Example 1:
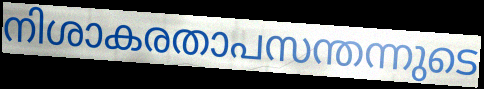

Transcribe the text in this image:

നിശാകരതാപസന്തന്നുടെ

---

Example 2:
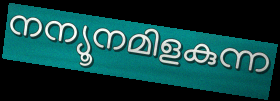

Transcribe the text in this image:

നന്യൂനമിളകുന്ന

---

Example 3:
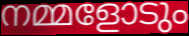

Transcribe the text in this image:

നമ്മളോടും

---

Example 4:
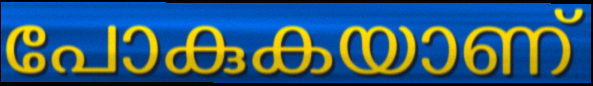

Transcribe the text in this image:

പോകുകയാണ്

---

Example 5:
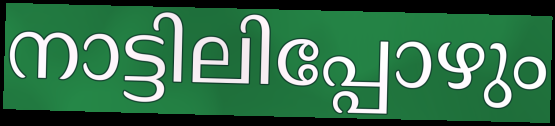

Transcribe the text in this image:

നാട്ടിലിപ്പോഴും